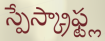
స్పేస్క్రాఫ్ట్ల